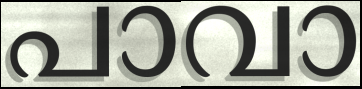
പാവാ